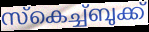
സ്‌കെച്ച്ബുക്ക്